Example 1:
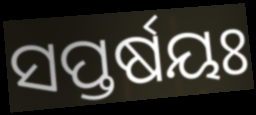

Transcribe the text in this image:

ସପ୍ତର୍ଷୟଃ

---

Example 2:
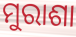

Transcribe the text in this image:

ମୁରାଶା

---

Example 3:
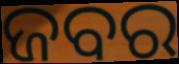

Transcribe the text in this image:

ଜବର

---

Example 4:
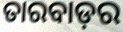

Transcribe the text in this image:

ତାରବାଡ଼ର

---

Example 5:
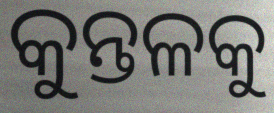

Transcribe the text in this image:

କୁନ୍ତଳକୁ